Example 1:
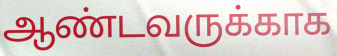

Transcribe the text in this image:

ஆண்டவருக்காக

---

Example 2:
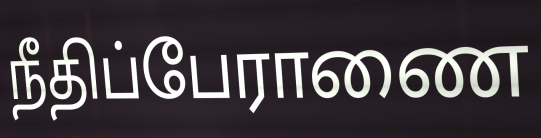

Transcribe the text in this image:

நீதிப்பேராணை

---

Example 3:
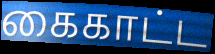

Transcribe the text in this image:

கைகாட்ட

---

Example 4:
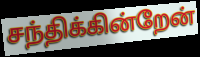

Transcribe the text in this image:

சந்திக்கின்றேன்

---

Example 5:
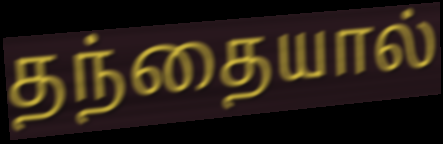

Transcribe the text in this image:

தந்தையால்